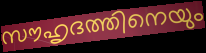
സൗഹൃദത്തിനെയും